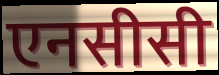
एनसीसी